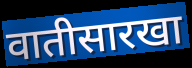
वातीसारखा